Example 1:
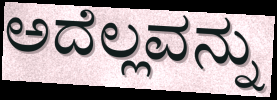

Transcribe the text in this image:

ಅದೆಲ್ಲವನ್ನು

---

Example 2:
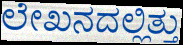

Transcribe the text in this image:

ಲೇಖನದಲ್ಲಿತ್ತು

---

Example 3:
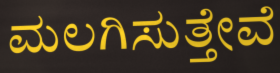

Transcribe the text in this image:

ಮಲಗಿಸುತ್ತೇವೆ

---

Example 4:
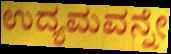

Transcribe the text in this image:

ಉದ್ಯಮವನ್ನೇ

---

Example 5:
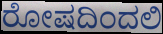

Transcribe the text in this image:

ರೋಷದಿಂದಲಿ